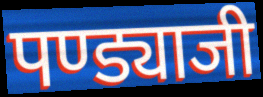
पण्ड्याजी